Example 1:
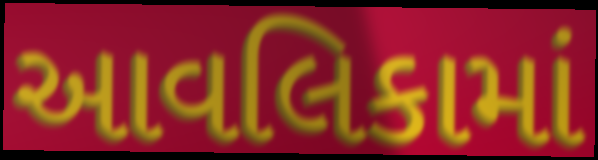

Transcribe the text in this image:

આવલિકામાં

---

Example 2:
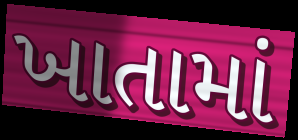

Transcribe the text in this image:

ખાતામાં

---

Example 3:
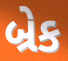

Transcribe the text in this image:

બ્રેક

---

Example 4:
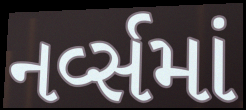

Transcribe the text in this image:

નર્વ્સમાં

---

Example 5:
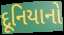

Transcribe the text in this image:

દૂનિયાનો